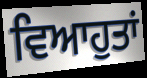
ਵਿਆਹੁਤਾਂ